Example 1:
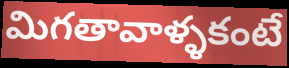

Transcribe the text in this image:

మిగతావాళ్ళకంటే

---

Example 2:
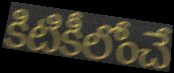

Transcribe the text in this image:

కిటికీలోంచే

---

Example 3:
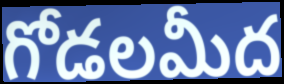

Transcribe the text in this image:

గోడలమీద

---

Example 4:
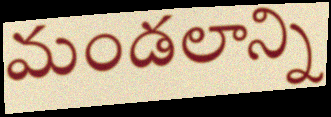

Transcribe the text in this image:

మండలాన్ని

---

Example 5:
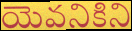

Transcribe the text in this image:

యెవనికిని